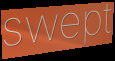
swept